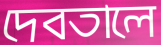
দেবতালে